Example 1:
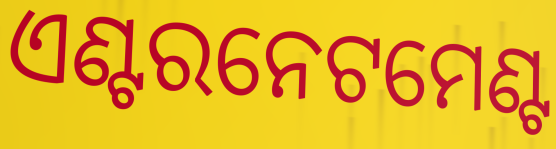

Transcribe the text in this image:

ଏଣ୍ଟରନେଟମେଣ୍ଟ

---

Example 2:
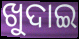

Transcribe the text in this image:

ଖୁଦାଇ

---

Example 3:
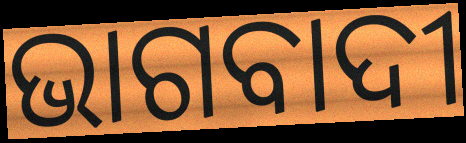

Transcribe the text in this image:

ଭାଗବାଦୀ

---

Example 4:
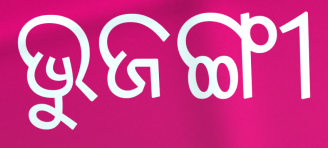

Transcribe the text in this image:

ଭୁଜଙ୍ଗୀ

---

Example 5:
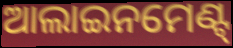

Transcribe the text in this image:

ଆଲାଇନମେଣ୍ଟ୍